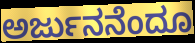
ಅರ್ಜುನನೆಂದೂ